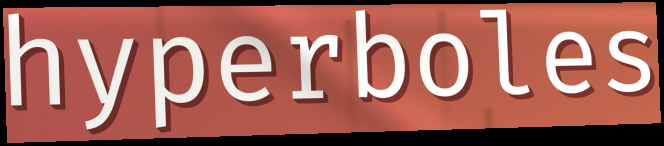
hyperboles